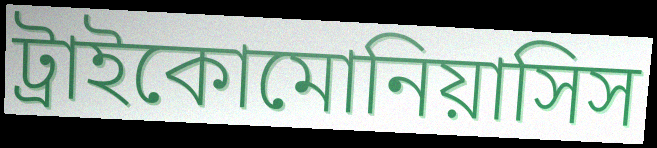
ট্রাইকোমোনিয়াসিস